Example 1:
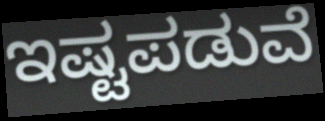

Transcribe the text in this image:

ಇಷ್ಟಪಡುವೆ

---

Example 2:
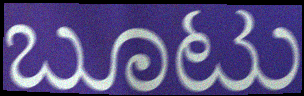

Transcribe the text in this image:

ಬೂಟು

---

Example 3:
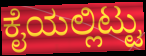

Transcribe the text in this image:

ಕೈಯಲ್ಲಿಟ್ಟು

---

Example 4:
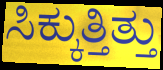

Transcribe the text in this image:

ಸಿಕ್ಕುತ್ತಿತ್ತು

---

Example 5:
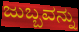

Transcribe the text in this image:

ಜುಬ್ಬವನ್ನು